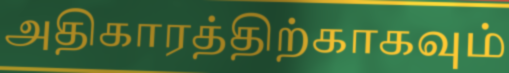
அதிகாரத்திற்காகவும்